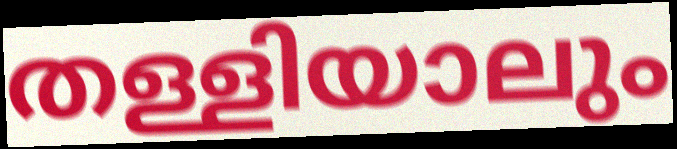
തള്ളിയാലും